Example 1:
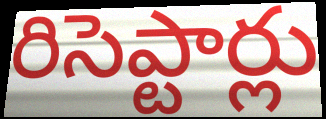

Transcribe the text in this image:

రిసెప్టార్లు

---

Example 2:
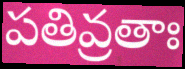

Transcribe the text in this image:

పతివ్రతాః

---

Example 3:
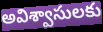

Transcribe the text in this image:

అవిశ్వాసులకు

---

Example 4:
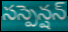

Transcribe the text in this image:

సస్పెన్షన్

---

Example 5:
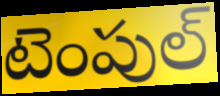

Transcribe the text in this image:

టెంపుల్